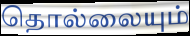
தொல்லையும்